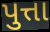
પુત્તા